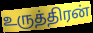
உருத்திரன்